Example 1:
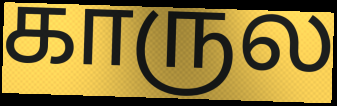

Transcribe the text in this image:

காருல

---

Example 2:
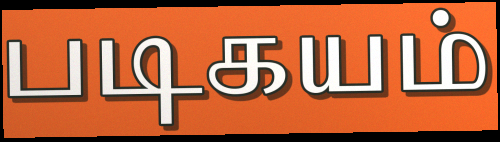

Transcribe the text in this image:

படிகயம்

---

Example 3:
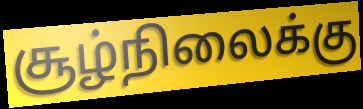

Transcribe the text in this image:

சூழ்நிலைக்கு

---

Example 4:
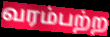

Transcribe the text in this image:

வரம்பற்ற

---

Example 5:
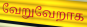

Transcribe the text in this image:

வேறுவேறாக